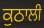
ਕੁਠਾਲੀ